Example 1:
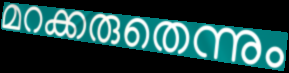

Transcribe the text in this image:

മറക്കരുതെന്നും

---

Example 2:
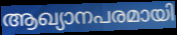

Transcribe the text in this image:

ആഖ്യാനപരമായി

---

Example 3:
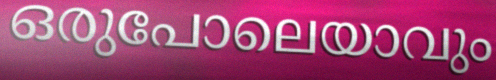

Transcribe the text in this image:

ഒരുപോലെയാവും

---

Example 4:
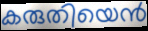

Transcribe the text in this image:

കരുതിയെൻ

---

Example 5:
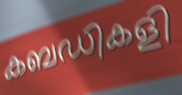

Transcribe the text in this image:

കബഡികളി